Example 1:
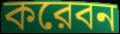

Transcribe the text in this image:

করেবন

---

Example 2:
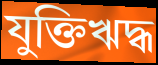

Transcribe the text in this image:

যুক্তিঋদ্ধ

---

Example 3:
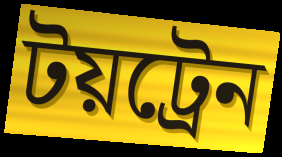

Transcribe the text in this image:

টয়ট্রেন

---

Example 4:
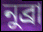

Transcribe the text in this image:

নুব্রা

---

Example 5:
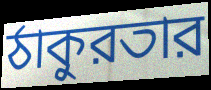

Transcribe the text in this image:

ঠাকুরতার